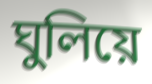
ঘুলিয়ে